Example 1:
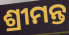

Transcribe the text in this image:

ଶ୍ରୀମନ୍ତ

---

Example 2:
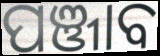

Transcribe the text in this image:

ପଞ୍ଜାବ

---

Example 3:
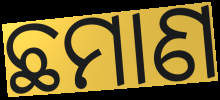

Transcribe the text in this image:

ଛମାଣ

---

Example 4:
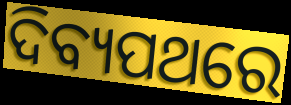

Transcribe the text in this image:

ଦିବ୍ୟପଥରେ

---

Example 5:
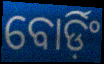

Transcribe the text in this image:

ବୋର୍ଡ଼ିଂ